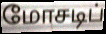
மோசடிப்